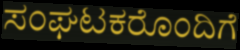
ಸಂಘಟಕರೊಂದಿಗೆ